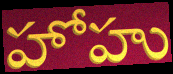
హోహు